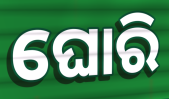
ଘୋରି